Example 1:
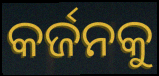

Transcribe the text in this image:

କର୍ଜନକୁ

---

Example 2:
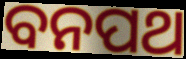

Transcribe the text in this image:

ବନପଥ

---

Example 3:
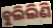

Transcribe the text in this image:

ବୁଲିଲିଣି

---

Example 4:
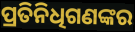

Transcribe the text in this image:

ପ୍ରତିନିଧିଗଣଙ୍କର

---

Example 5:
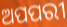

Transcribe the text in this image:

ଅପପରୀ